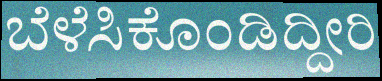
ಬೆಳೆಸಿಕೊಂಡಿದ್ದೀರಿ